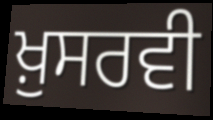
ਖ਼ੁਸਰਵੀ